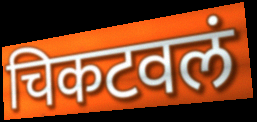
चिकटवलं